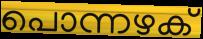
പൊന്നഴക്